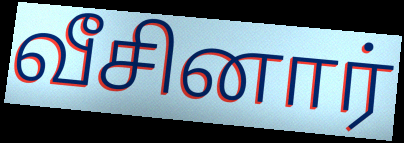
வீசினார்